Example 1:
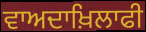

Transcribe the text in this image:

ਵਾਅਦਾਖ਼ਿਲਾਫੀ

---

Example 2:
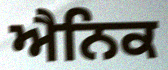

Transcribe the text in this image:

ਐਨਿਕ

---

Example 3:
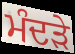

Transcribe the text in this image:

ਮੰਦੜੇ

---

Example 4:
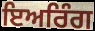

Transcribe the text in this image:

ਇਅਰਿੰਗ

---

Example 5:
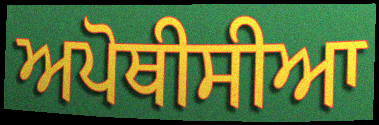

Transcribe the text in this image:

ਅਪੋਥੀਸੀਆ